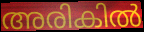
അരികിൽ